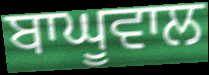
ਬਾਘੂਵਾਲ